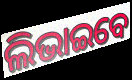
ଲିଭାଇବେ